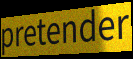
pretender